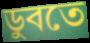
ডুবতে